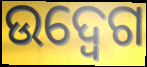
ଉଦ୍ବେଗ